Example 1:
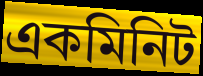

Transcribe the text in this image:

একমিনিট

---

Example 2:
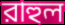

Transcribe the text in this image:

রাহুল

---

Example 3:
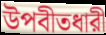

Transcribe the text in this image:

উপবীতধারী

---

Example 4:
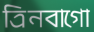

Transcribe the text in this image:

ত্রিনবাগো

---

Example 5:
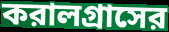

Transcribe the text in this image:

করালগ্রাসের